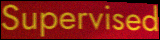
Supervised